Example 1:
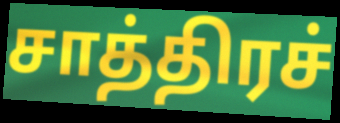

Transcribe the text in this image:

சாத்திரச்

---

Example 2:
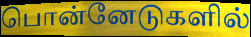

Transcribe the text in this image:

பொன்னேடுகளில்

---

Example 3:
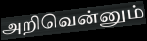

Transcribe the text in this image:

அறிவென்னும்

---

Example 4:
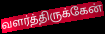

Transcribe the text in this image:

வளர்த்திருக்கேன்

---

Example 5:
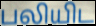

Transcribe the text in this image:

பலியிட